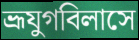
ভ্রূযুগবিলাসে